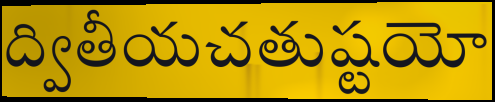
ద్వితీయచతుష్టయో